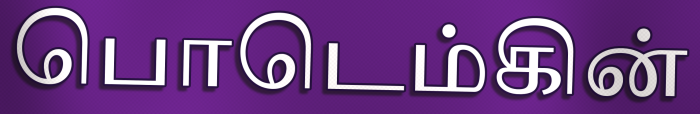
பொடெம்கின்